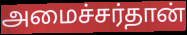
அமைச்சர்தான்